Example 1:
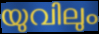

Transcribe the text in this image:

യുവിലും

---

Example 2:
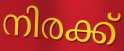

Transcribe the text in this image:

നിരക്ക്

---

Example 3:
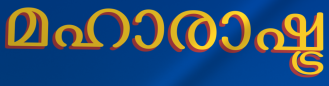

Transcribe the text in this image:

മഹാരാഷ്ട്ര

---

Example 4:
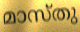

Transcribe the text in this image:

മാസ്തു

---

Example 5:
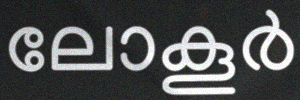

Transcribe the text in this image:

ലോകൂർ